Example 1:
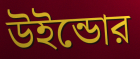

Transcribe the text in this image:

উইন্ডোর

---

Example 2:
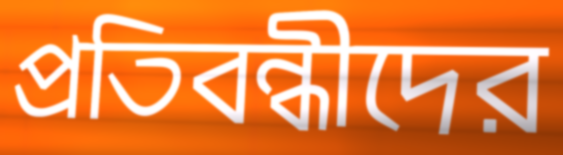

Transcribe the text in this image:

প্রতিবন্ধীদের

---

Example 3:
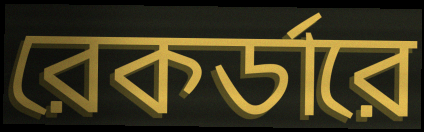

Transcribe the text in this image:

রেকর্ডারে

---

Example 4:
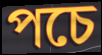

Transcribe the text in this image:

পচে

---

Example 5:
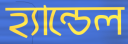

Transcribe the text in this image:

হ্যান্ডেল